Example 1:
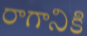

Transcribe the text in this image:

రాగానికి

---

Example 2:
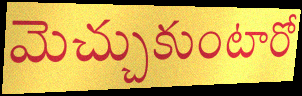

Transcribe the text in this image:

మెచ్చుకుంటారో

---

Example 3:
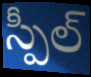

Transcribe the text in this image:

స్పీల్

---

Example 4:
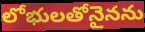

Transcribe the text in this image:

లోభులతోనైనను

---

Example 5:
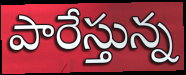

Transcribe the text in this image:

పారేస్తున్న